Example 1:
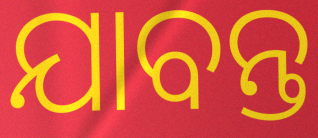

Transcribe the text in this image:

ଯାବନ୍ତ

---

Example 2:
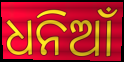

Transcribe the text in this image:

ଧନିଆଁ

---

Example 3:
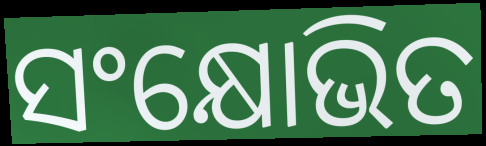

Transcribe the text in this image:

ସଂକ୍ଷୋଭିତ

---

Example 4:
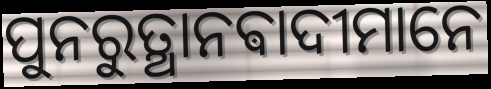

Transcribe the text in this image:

ପୁନରୁତ୍ଥାନଵାଦୀମାନେ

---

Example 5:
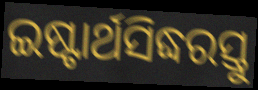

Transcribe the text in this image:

ଇଷ୍ଟାର୍ଥସିଦ୍ଧରସ୍ତୁ